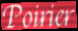
Poirier